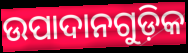
ଉପାଦାନଗୁଡ଼ିକ